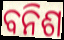
ବନିଶ